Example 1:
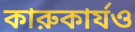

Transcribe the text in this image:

কারুকার্যও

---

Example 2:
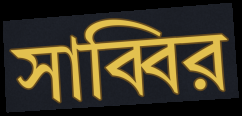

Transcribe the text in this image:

সাব্বির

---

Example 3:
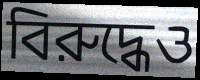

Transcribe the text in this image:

বিরুদ্ধেও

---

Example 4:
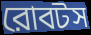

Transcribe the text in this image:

রোবটস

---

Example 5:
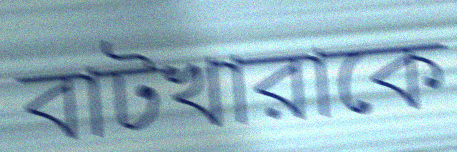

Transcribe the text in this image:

বাটখারাকে